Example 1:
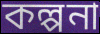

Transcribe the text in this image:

কল্পনা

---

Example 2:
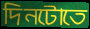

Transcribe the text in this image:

দিনটোতে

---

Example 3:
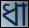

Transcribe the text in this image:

ধা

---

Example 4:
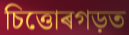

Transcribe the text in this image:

চিত্তোৰগড়ত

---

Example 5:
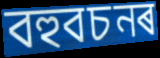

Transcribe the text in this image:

বহুবচনৰ